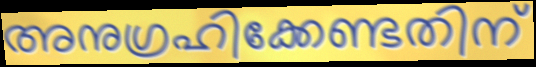
അനുഗ്രഹിക്കേണ്ടതിന്